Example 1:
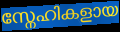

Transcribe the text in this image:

സ്നേഹികളായ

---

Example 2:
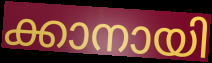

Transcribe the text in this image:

ക്കാനായി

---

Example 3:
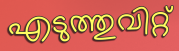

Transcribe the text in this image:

എടുത്തുവിറ്റ്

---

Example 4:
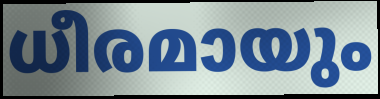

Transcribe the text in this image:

ധീരമായും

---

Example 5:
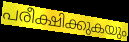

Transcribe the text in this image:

പരീക്ഷിക്കുകയും